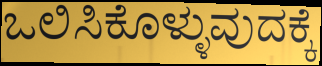
ಒಲಿಸಿಕೊಳ್ಳುವುದಕ್ಕೆ